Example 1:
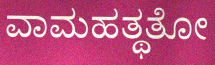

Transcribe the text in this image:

ವಾಮಹತ್ಥತೋ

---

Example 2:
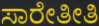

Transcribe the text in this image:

ಸಾರೇತೀತಿ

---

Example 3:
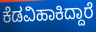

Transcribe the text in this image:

ಕೆಡವಿಹಾಕಿದ್ದಾರೆ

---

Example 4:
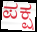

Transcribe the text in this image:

ಪಕ್ಷ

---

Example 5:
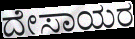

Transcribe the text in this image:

ದೇಸಾಯರ